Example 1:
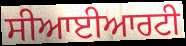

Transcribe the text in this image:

ਸੀਆਈਆਰਟੀ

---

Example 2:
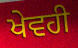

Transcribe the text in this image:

ਖੇਵਹੀ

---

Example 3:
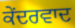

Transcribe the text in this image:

ਕੇਂਦਰਵਾਦ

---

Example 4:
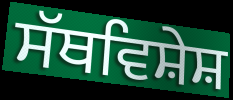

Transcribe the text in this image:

ਸੱਥਵਿਸ਼ੇਸ਼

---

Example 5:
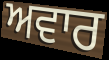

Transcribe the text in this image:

ਅਵਾਰ